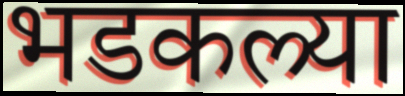
भडकल्या